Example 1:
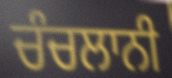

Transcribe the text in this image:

ਚੰਚਲਾਨੀ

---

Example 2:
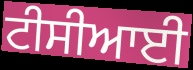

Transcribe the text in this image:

ਟੀਸੀਆਈ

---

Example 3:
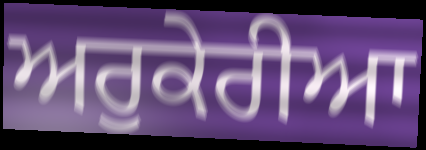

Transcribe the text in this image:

ਅਰੁਕੇਰੀਆ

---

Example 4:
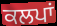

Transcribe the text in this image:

ਕਲਪਾਂ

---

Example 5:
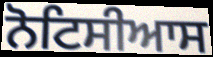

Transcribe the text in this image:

ਨੋਟਿਸੀਆਸ